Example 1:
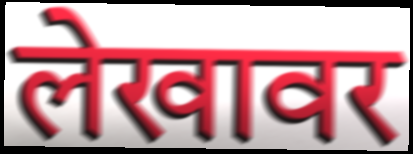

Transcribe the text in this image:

लेखावर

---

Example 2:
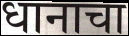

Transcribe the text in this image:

धानाचा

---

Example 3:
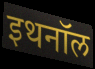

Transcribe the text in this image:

इथनॉल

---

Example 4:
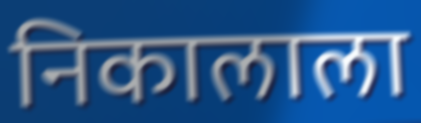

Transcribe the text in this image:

निकालाला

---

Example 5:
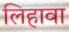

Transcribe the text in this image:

लिहावा